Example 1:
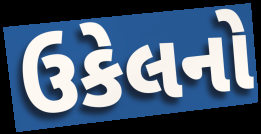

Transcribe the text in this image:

ઉકેલનો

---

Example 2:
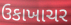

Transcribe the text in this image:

ઉકાખાચર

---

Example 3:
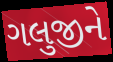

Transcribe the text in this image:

ગલુજીને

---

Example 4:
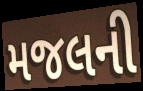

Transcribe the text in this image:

મજલની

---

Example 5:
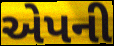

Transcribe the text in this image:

એપની